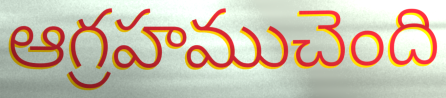
ఆగ్రహముచెంది